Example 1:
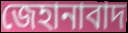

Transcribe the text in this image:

জেহানাবাদ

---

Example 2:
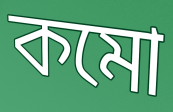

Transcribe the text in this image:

কমো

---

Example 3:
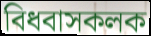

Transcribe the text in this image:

বিধবাসকলক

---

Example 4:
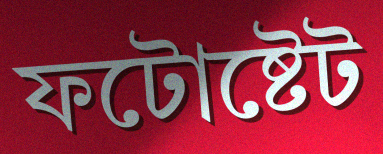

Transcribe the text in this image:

ফটোষ্টেট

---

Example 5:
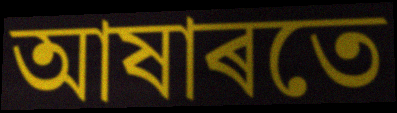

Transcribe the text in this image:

আষাৰতে